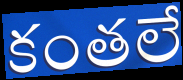
కంతలే